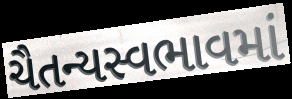
ચૈતન્યસ્વભાવમાં